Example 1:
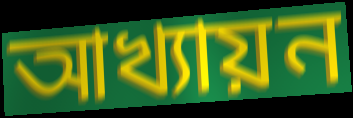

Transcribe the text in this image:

আখ্যায়ন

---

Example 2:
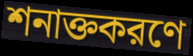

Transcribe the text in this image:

শনাক্তকরণে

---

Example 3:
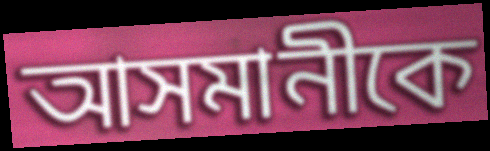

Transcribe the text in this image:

আসমানীকে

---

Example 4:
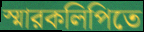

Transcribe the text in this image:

স্মারকলিপিতে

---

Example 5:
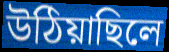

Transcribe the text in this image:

উঠিয়াছিলে